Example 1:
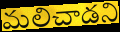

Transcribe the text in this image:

మలిచాడని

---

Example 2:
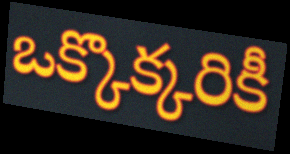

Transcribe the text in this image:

ఒక్కొక్కరికీ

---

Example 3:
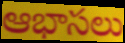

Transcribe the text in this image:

ఆభాసలు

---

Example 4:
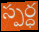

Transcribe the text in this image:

స్పర్ధ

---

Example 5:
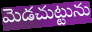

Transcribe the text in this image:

మెడచుట్టును